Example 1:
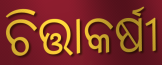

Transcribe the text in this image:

ଚିତ୍ତାକର୍ଷୀ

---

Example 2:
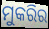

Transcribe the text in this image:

ମୁକରିର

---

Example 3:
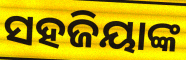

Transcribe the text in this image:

ସହଜିୟାଙ୍କ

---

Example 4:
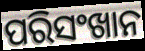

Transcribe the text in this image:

ପରିସଂଖାନ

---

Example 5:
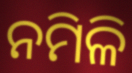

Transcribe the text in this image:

ନମିଳି